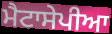
ਮੈਟਾਸੇਪੀਆ